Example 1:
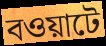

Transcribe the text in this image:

বওয়াটে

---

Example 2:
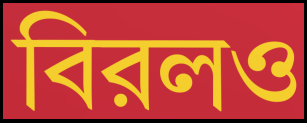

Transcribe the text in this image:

বিরলও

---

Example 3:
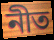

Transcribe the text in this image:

নীত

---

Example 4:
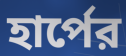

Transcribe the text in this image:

হার্পের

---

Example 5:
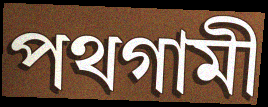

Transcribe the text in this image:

পথগামী